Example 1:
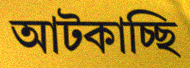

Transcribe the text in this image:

আটকাচ্ছি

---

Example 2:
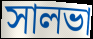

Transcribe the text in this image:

সালভা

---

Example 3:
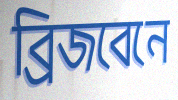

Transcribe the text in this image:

ব্রিজবেনে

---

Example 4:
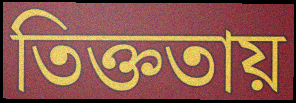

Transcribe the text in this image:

তিক্ততায়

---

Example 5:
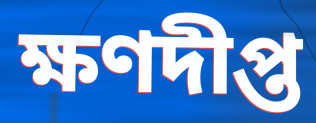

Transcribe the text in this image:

ক্ষণদীপ্ত